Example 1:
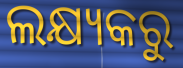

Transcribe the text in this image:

ଲକ୍ଷ୍ୟକରୁ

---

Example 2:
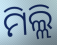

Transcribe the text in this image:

ମିଲ୍ଲି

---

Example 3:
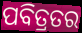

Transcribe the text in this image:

ପବିତ୍ରତର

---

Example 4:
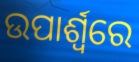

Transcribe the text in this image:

ଉପାର୍ଶ୍ଵରେ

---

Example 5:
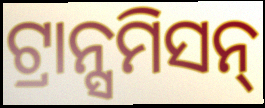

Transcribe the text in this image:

ଟ୍ରାନ୍ସମିସନ୍